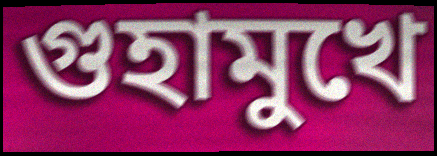
গুহামুখে